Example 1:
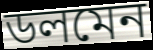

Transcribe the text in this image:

ডলমেন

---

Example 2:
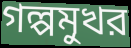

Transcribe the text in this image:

গল্পমুখর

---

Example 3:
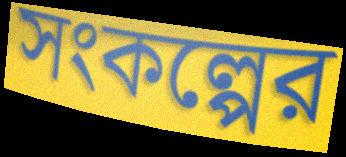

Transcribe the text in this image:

সংকল্পের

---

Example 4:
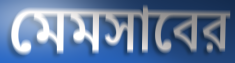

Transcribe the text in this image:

মেমসাবের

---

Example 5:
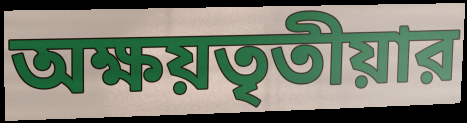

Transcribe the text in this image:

অক্ষয়তৃতীয়ার